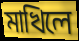
মাখিলে